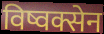
विष्वक्सेन